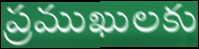
ప్రముఖులకు